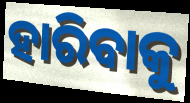
ହାରିବାକୁ